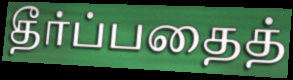
தீர்ப்பதைத்